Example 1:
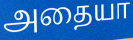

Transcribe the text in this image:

அதையா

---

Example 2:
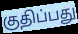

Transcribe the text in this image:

குதிப்பது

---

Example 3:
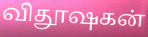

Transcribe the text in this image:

விதூஷகன்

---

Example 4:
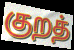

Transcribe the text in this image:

குறத்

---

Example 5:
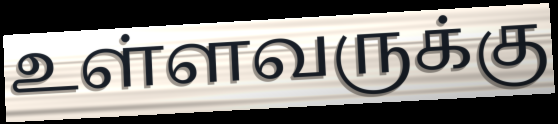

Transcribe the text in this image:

உள்ளவருக்கு